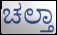
ಚಲ್ತಾ